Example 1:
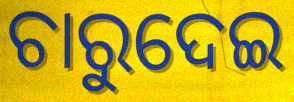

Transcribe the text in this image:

ଚାରୁଦେଇ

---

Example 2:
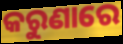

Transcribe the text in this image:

କରୁଣାରେ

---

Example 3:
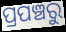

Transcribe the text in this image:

ପ୍ରପଞ୍ଚରୁ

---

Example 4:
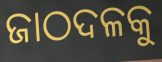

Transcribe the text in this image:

ଜାଠଦଳକୁ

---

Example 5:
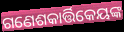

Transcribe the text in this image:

ଗଣେଶକାର୍ତ୍ତିକେୟଙ୍କ